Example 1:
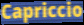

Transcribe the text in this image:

Capriccio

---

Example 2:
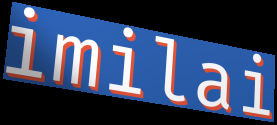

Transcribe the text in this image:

imilai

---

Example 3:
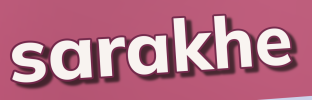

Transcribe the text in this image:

sarakhe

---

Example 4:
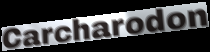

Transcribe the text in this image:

Carcharodon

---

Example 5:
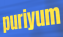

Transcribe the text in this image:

puriyum